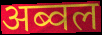
अब्वल